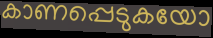
കാണപ്പെടുകയോ